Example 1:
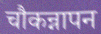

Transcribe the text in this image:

चौकन्नापन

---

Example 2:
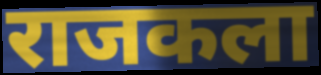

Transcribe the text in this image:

राजकला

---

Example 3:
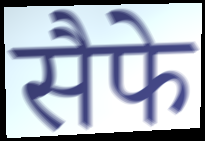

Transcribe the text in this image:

सैफे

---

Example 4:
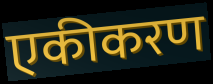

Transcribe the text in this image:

एकीकरण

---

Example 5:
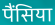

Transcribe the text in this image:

पैंसिया